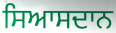
ਸਿਆਸਦਾਨ